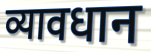
व्यावधान